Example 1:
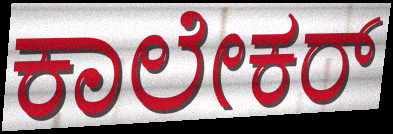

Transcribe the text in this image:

ಕಾಲೇಕರ್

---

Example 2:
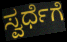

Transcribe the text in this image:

ಸ್ವರ್ಧೆಗೆ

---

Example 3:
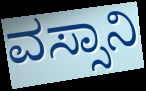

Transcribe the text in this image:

ವಸ್ಸಾನಿ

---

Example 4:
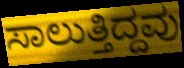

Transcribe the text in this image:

ಸಾಲುತ್ತಿದ್ದವು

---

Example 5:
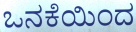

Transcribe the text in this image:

ಒನಕೆಯಿಂದ